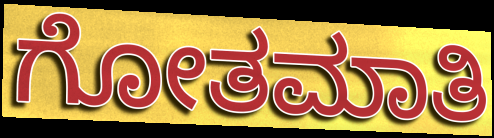
ಗೋತಮಾತಿ